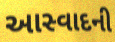
આસ્વાદની